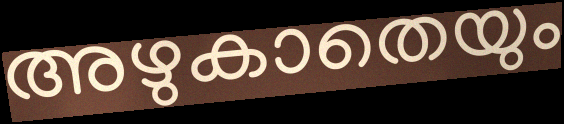
അഴുകാതെയും